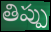
తిప్పు